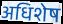
अधिशेष